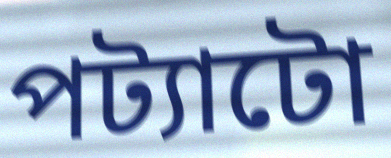
পট্যাটো